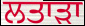
ਲਤਾੜਾ